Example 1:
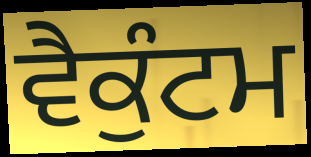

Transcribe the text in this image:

ਵੈਕੁੰਟਮ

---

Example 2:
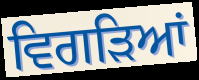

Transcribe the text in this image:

ਵਿਗੜਿਆਂ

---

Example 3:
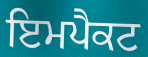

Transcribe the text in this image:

ਇਮਪੈਕਟ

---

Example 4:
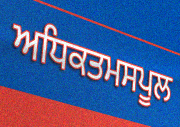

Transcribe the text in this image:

ਅਧਿਕਤਮਸਪੂਲ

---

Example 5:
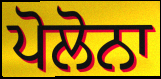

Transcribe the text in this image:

ਪੋਲੋਨਾ